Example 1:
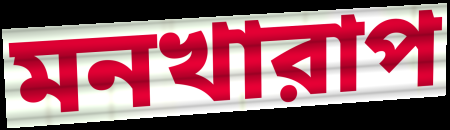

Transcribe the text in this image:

মনখারাপ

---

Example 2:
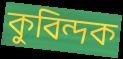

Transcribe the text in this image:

কুবিন্দক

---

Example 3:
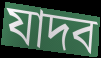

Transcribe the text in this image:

যাদব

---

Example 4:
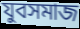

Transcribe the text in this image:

যুবসমাজ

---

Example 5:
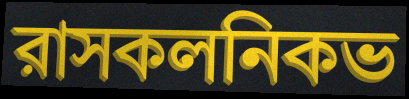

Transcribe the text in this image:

রাসকলনিকভ